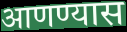
आणण्यास